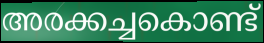
അരക്കച്ചകൊണ്ട്